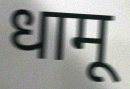
धामू